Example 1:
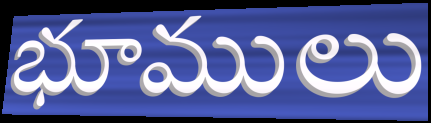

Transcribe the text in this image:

భూములు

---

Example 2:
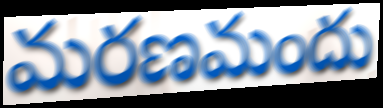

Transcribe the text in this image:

మరణమందు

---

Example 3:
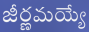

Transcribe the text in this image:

జీర్ణమయ్యే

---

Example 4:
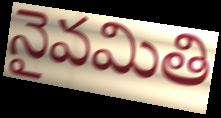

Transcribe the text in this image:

నైవమితి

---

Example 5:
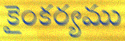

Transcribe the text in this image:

కైంకర్యము